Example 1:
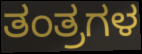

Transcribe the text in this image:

ತಂತ್ರಗಳ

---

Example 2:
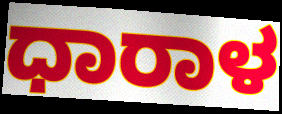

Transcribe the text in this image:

ಧಾರಾಳ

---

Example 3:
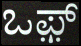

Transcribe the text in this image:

ಒಫ಼್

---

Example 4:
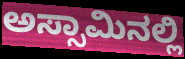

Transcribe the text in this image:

ಅಸ್ಸಾಮಿನಲ್ಲಿ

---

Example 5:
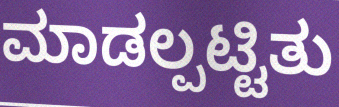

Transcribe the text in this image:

ಮಾಡಲ್ಪಟ್ಟಿತು